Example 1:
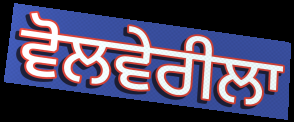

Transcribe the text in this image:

ਵੋਲਵੇਰੀਲਾ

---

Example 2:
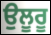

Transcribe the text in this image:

ਉਲੂਰੂ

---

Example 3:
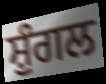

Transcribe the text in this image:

ਸ਼ੁੰਗਲ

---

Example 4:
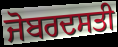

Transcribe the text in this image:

ਜੋਬਰਦਸਤੀ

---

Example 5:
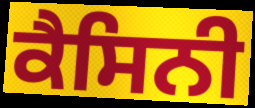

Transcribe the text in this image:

ਕੈਸਿਨੀ